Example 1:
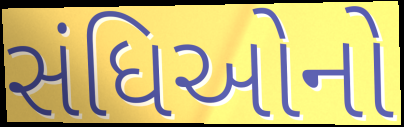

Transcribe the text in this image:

સંધિઓનો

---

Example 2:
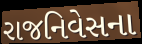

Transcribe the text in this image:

રાજનિવેસના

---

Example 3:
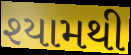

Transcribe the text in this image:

શ્યામથી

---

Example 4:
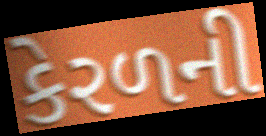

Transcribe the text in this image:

કેરળની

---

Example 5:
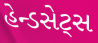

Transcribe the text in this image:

હેન્ડસેટ્સ